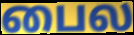
பைல